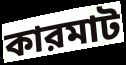
কারমাট